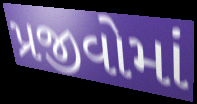
પ્રજીવોમાં